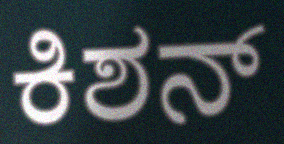
ಕಿಶನ್